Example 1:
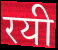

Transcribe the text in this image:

रयी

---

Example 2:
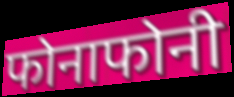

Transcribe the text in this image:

फोनाफोनी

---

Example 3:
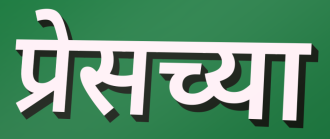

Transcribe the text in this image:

प्रेसच्या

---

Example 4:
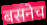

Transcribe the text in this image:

बसनेच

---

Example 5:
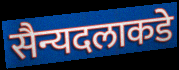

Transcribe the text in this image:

सैन्यदलाकडे